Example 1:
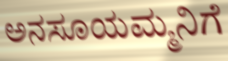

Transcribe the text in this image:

ಅನಸೂಯಮ್ಮನಿಗೆ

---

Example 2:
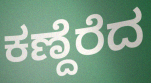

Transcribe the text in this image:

ಕಣ್ದೆರೆದ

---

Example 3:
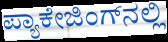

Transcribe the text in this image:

ಪ್ಯಾಕೇಜಿಂಗ್‌ನಲ್ಲಿ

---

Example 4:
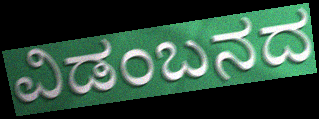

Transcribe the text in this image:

ವಿಡಂಬನದ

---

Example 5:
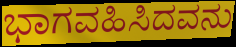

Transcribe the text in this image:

ಭಾಗವಹಿಸಿದವನು